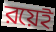
রয়েই